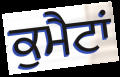
ਕੁਮੈਟਾਂ